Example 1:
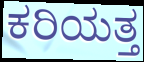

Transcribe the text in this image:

ಕರಿಯತ್ತ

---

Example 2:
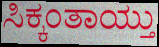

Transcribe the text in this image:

ಸಿಕ್ಕಂತಾಯ್ತು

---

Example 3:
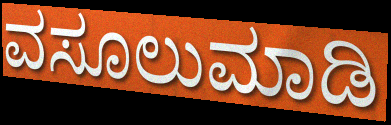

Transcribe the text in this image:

ವಸೂಲುಮಾಡಿ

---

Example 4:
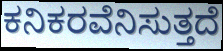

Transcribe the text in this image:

ಕನಿಕರವೆನಿಸುತ್ತದೆ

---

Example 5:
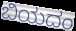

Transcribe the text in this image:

ಬಿಯದಂ